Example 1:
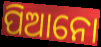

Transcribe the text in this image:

ପିଆନୋ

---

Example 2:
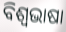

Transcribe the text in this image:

ବିଶ୍ୱଭାଷା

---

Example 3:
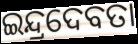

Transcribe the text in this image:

ଇନ୍ଦ୍ରଦେବତା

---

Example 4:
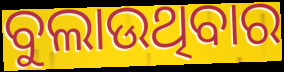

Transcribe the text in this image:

ବୁଲାଉଥିବାର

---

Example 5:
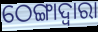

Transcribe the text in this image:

ଠେଙ୍ଗାଦ୍ୱାରା